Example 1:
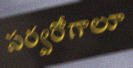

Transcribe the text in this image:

సర్వరోగాలూ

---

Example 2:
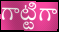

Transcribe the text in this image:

గాట్టిగా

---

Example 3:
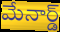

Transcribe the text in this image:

మేనార్డ్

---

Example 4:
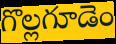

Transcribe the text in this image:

గొల్లగూడెం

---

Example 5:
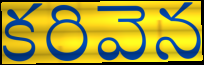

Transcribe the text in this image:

కరివెన